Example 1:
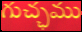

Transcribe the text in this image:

గుచ్ఛము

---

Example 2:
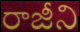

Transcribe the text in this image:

రాజీని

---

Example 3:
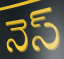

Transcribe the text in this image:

నెస్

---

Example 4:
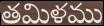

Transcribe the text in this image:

తమిళము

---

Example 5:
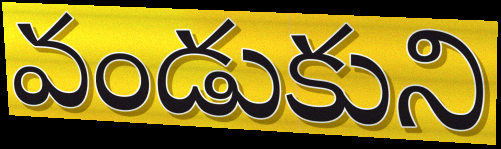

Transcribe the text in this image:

వండుకుని